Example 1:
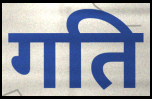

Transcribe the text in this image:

गति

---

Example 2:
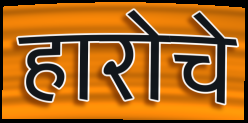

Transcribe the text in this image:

हारोचे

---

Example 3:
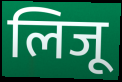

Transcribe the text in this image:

लिजू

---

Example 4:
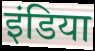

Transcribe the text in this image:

इंडिया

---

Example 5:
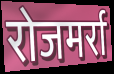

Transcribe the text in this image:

रोजमर्रा